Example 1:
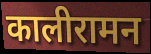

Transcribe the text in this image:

कालीरामन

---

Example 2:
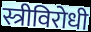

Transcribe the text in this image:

स्त्रीविरोधी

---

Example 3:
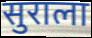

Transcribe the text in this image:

सुराला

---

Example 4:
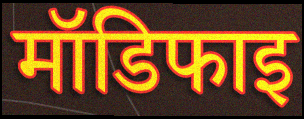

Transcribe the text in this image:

मॉडिफाइ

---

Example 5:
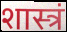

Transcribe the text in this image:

शास्त्रं